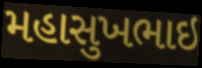
મહાસુખભાઇ